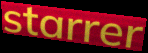
starrer